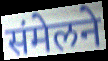
संमेलने